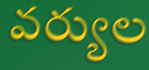
వర్యుల